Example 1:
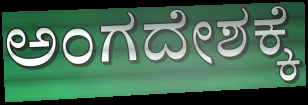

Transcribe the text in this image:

ಅಂಗದೇಶಕ್ಕೆ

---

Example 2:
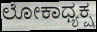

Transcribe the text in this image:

ಲೋಕಾಧ್ಯಕ್ಷ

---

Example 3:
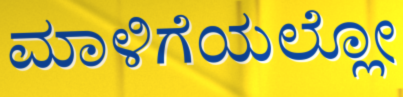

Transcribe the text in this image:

ಮಾಳಿಗೆಯಲ್ಲೋ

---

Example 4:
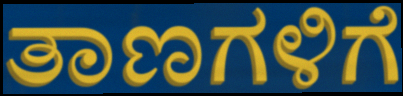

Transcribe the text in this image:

ತಾಣಗಳಿಗೆ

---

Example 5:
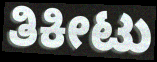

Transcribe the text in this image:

ತಿಕೀಟು